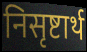
निसृष्टार्थ